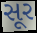
સૂર